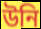
উনি